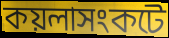
কয়লাসংকটে